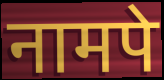
नामपे